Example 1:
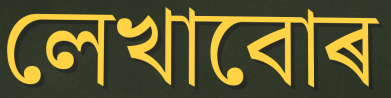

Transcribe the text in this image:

লেখাবোৰ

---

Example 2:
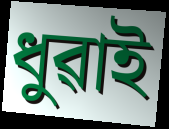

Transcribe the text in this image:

ধুৱাই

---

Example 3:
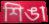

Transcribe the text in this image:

শিঙা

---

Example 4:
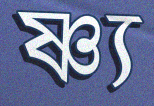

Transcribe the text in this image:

ষ্ণ্য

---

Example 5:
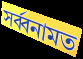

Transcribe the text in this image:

সৰ্ব্বনামত